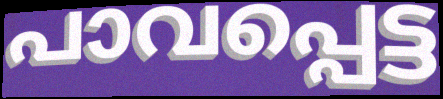
പാവപ്പെട്ട